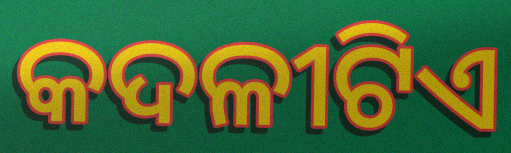
କଦଳୀଟିଏ